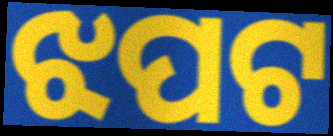
ଝପଟ